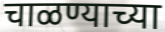
चाळण्याच्या